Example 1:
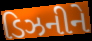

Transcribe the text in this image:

ડિઝનીને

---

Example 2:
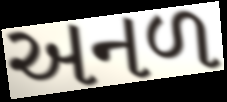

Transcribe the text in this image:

અનળ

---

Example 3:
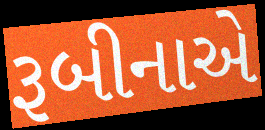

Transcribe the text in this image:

રૂબીનાએ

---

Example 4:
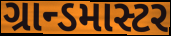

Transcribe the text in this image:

ગ્રાન્ડમાસ્ટર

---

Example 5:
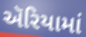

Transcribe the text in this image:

ઍરિયામાં